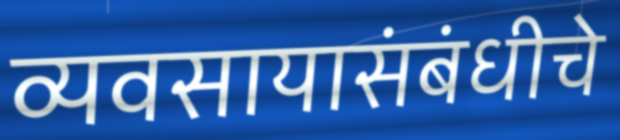
व्यवसायासंबंधीचे